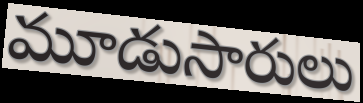
మూడుసారులు